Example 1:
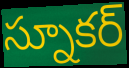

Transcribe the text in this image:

స్నూకర్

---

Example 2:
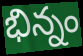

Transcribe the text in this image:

భిన్నం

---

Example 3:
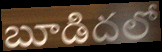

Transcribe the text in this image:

బూడిదలో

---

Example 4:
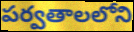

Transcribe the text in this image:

పర్వతాలలోని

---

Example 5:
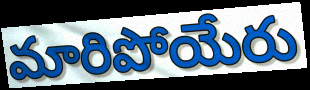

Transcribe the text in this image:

మారిపోయేరు